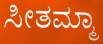
ಸೀತಮ್ಮಾ